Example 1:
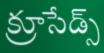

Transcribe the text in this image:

క్రూసేడ్స్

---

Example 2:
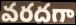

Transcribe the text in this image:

వరదగా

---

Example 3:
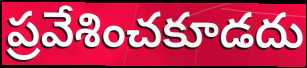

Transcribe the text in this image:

ప్రవేశించకూడదు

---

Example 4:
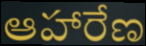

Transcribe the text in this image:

ఆహారేణ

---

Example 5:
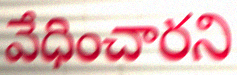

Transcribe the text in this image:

వేధించారని